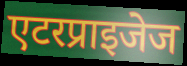
एटरप्राइजेज